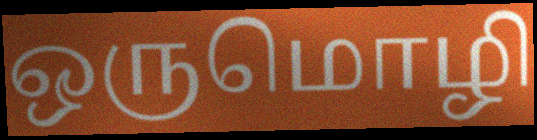
ஒருமொழி